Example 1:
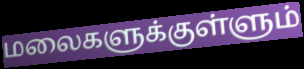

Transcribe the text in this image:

மலைகளுக்குள்ளும்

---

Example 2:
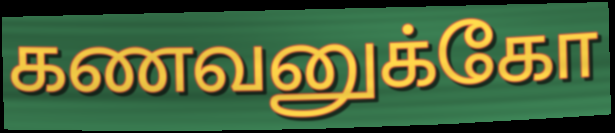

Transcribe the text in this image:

கணவனுக்கோ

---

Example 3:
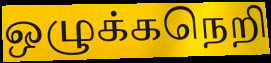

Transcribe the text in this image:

ஒழுக்கநெறி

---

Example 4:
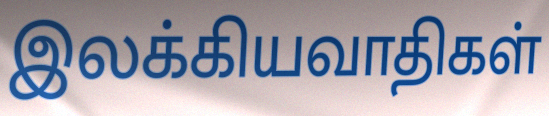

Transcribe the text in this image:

இலக்கியவாதிகள்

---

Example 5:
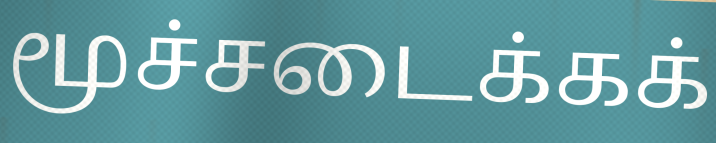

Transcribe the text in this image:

மூச்சடைக்கக்